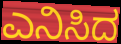
ಎನಿಸಿದ